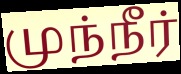
முந்நீர்